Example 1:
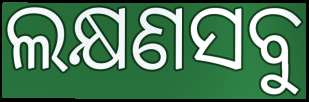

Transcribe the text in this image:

ଲକ୍ଷଣସବୁ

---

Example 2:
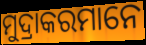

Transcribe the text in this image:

ମୁଦ୍ରାକରମାନେ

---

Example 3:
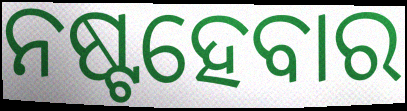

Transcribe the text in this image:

ନଷ୍ଟହେବାର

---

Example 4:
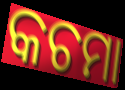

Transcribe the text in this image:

କଚମା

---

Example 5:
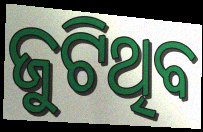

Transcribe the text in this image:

ଜୁଟିଥିବ